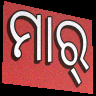
ମାର୍